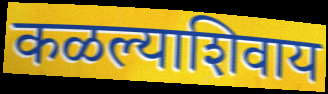
कळल्याशिवाय